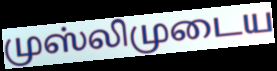
முஸ்லிமுடைய